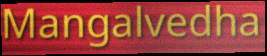
Mangalvedha